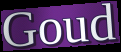
Goud